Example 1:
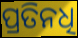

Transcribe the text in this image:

ପ୍ରତିନଧି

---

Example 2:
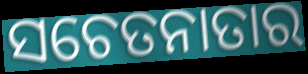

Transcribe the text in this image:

ସଚେତନାତାର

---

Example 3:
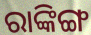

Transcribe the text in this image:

ରାଙ୍କିଙ୍ଗ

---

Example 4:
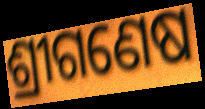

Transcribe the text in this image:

ଶ୍ରୀଗଣେଷ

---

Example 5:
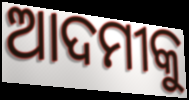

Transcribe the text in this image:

ଆଦମୀକୁ